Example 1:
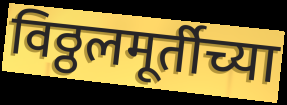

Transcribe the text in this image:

विठ्ठलमूर्तीच्या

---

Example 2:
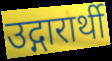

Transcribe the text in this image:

उद्गारार्थी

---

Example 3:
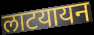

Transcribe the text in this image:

लाटयायन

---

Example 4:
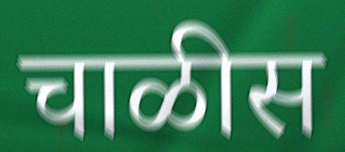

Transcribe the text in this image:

चाळीस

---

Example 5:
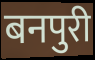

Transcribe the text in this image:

बनपुरी